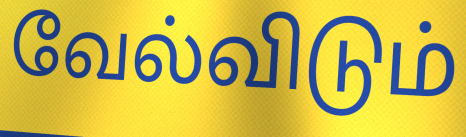
வேல்விடும்